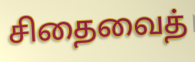
சிதைவைத்